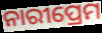
ନାରୀପ୍ରେମ